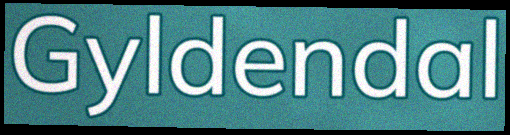
Gyldendal